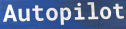
Autopilot